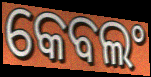
କେବଲଂ